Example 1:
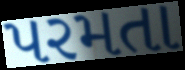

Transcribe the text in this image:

પરમતા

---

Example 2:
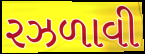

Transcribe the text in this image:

રઝળાવી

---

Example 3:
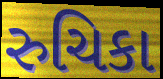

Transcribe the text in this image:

રુચિકા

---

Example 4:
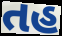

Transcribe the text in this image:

તહ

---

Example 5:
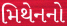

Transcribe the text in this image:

મિથેનનો